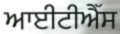
ਆਈਟੀਐੱਸ